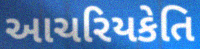
આચરિયકેતિ